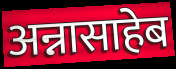
अन्नासाहेब